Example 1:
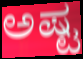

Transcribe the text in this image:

ಅಷ್ಟ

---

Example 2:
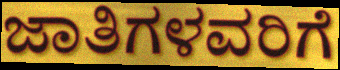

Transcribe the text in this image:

ಜಾತಿಗಳವರಿಗೆ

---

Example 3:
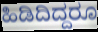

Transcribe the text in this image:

ಹಿಡಿದಿದ್ದರೂ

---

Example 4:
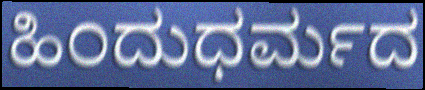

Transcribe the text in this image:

ಹಿಂದುಧರ್ಮದ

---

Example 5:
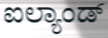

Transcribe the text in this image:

ಐಲ್ಯಾಂಡ್